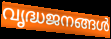
വൃദ്ധജനങ്ങൾ